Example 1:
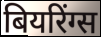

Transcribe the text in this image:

बियरिंग्स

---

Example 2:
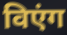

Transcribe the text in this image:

विएंग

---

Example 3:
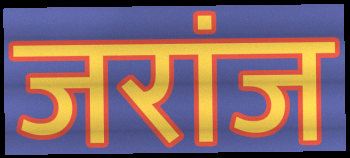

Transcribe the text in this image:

जरांज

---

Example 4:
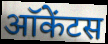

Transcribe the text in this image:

ऑकेंटस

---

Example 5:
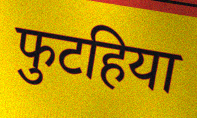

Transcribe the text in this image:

फुटहिया